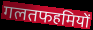
गलतफहमियों